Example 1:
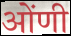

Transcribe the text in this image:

ओंणी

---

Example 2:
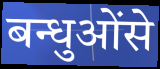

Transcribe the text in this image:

बन्धुओंसे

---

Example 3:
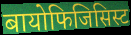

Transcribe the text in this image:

बायोफिजिसिस्ट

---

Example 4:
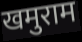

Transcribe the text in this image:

खमुराम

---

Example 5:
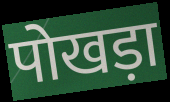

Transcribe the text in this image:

पोखड़ा